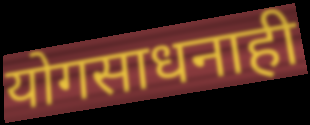
योगसाधनाही